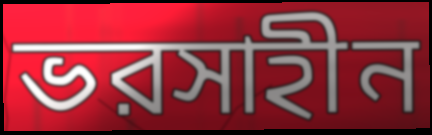
ভরসাহীন